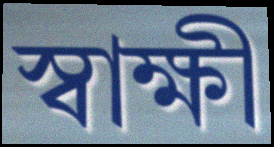
স্বাক্ষী